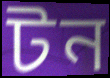
টন